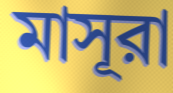
মাসূরা